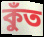
কুঁত